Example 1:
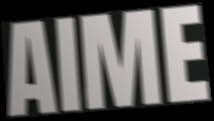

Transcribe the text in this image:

AIME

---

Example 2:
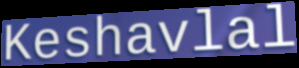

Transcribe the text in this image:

Keshavlal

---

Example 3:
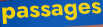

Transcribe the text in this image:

passages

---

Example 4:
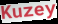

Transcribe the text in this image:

Kuzey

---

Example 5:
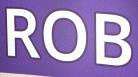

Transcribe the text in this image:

ROB